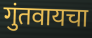
गुंतवायचा